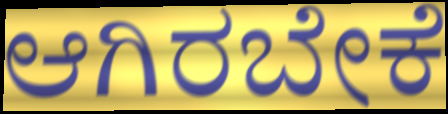
ಆಗಿರಬೇಕೆ